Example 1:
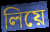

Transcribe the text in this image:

লিয়ে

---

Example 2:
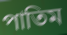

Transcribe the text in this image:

পাতিম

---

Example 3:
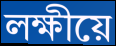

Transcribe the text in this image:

লক্ষীয়ে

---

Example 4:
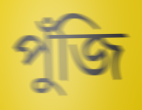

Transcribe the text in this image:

পুঁজি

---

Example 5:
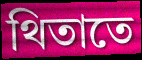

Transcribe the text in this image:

থিতাতে